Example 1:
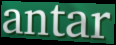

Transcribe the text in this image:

antar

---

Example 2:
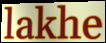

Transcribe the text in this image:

lakhe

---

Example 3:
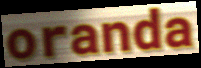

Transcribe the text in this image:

oranda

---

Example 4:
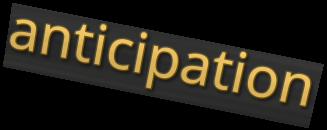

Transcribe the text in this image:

anticipation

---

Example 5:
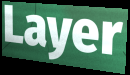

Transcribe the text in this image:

Layer